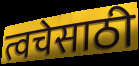
त्वचेसाठी